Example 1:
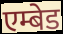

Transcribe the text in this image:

एम्बेड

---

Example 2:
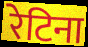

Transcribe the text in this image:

रेटिना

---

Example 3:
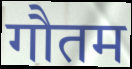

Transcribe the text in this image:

गौतम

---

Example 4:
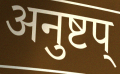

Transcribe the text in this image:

अनुष्टप्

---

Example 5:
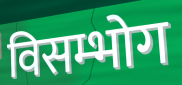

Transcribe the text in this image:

विसम्भोग